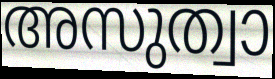
അസുത്വാ